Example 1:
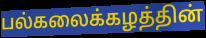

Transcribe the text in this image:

பல்கலைக்கழத்தின்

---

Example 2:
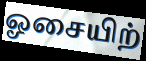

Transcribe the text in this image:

ஓசையிற்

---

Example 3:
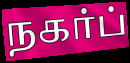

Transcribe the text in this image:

நகர்ப்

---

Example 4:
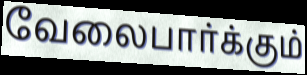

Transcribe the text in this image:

வேலைபார்க்கும்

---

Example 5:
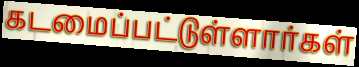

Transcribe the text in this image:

கடமைப்பட்டுள்ளார்கள்